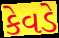
કેવડે